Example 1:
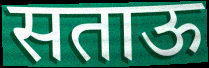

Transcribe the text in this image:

सताऊ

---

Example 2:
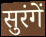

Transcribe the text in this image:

सुरंगें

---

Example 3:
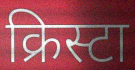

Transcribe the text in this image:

क्रिस्टा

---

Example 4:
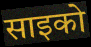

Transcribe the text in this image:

साइको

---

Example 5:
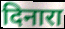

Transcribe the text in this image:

दिनारा